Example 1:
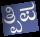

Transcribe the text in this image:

ತ್ಪಿಪ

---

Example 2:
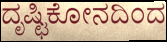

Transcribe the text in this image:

ದೃಷ್ಟಿಕೋನದಿಂದ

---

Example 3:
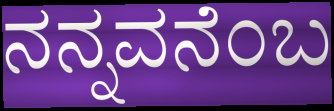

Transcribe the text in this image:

ನನ್ನವನೆಂಬ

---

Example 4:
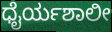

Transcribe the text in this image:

ಧೈರ್ಯಶಾಲೀ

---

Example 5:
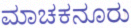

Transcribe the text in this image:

ಮಾಚಕನೂರು